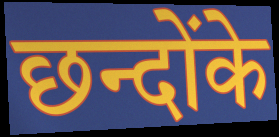
छन्दोंके